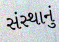
સંસ્થાનું